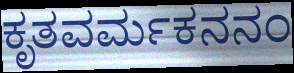
ಕೃತವರ್ಮಕನನಂ